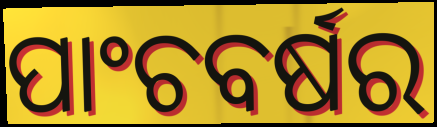
ପାଂଚବର୍ଷର